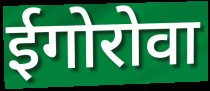
ईगोरोवा